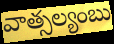
వాత్సల్యంబు